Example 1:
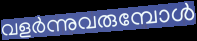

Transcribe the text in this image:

വളർന്നുവരുമ്പോൾ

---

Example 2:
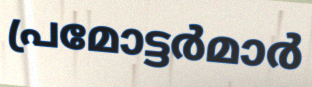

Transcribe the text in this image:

പ്രമോട്ടർമാർ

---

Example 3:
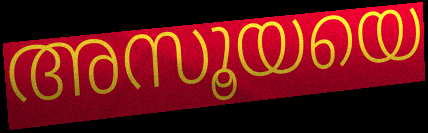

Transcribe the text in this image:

അസൂയയെ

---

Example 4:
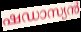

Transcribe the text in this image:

ഷഡാസ്യൻ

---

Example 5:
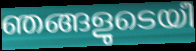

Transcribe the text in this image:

ഞങ്ങളുടെയീ